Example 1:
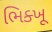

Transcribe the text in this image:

ભિક્ખૂ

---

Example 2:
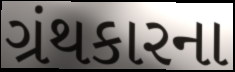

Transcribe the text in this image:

ગ્રંથકારના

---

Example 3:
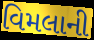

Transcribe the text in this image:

વિમલાની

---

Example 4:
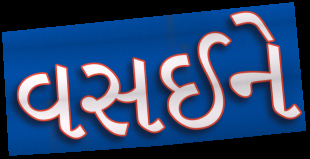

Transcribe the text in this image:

વસઈને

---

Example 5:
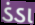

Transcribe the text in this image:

ડંડા